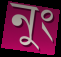
নুং